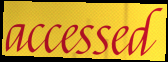
accessed